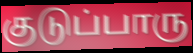
குடுப்பாரு